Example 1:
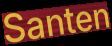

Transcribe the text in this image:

Santen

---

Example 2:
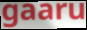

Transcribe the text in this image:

gaaru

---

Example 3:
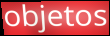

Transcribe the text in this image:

objetos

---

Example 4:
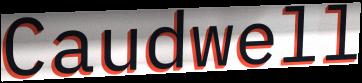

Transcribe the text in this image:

Caudwell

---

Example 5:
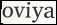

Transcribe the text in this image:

oviya